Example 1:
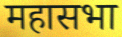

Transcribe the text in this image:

महासभा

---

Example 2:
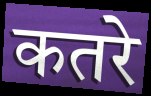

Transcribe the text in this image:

कतरे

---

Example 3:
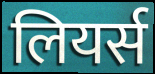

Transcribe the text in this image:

लियर्स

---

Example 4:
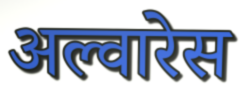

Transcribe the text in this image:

अल्वारेस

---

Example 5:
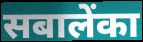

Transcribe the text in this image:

सबालेंका